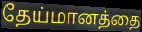
தேய்மானத்தை